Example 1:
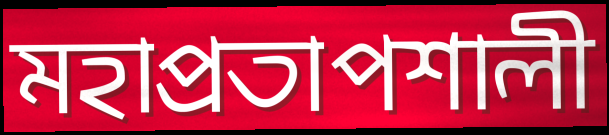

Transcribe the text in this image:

মহাপ্রতাপশালী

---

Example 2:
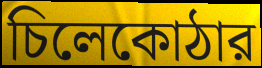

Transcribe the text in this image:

চিলেকোঠার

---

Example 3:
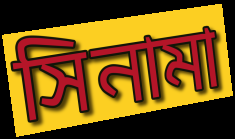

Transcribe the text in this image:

সিনামা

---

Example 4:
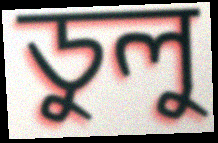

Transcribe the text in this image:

ডুলু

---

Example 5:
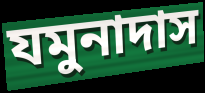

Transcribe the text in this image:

যমুনাদাস